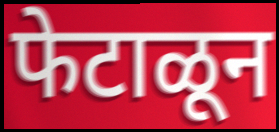
फेटाळून